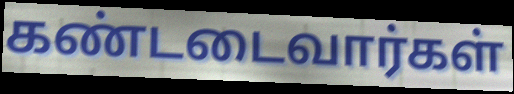
கண்டடைவார்கள்